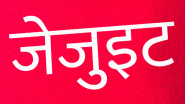
जेजुइट